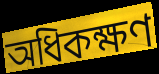
অধিকক্ষণ